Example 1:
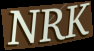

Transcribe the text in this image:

NRK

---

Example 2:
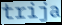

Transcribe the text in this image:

trija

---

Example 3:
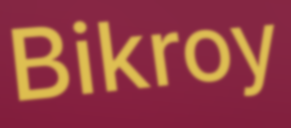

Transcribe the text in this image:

Bikroy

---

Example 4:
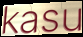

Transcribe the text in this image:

kasu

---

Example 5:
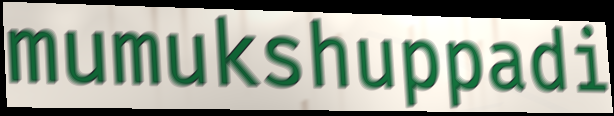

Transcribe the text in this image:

mumukshuppadi